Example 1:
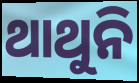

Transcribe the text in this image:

ଥାଥୁନି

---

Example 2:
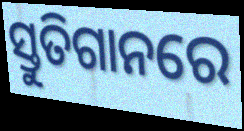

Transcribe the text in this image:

ସ୍ତୁତିଗାନରେ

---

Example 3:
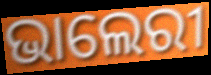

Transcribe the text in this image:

ଭାଲେରୀ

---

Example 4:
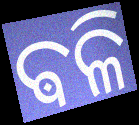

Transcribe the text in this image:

ଵଳି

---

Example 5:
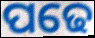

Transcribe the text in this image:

ପଢେ